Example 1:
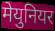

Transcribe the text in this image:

मेयुनियर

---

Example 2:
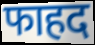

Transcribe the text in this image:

फाहद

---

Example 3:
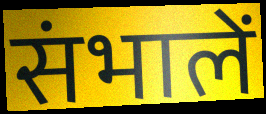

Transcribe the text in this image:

संभालें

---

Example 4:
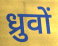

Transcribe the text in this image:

ध्रुवों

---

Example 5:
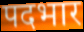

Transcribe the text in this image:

पदभार